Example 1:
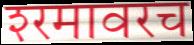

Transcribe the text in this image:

श्रमावरच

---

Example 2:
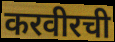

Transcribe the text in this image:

करवीरची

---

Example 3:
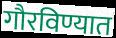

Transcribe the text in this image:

गौरविण्यात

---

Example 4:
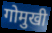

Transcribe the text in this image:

गोमुखी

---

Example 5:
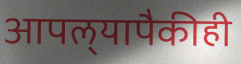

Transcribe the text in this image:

आपल्यापैकीही